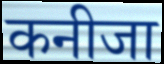
कनीजा